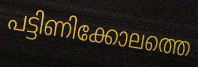
പട്ടിണിക്കോലത്തെ